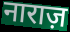
नाराज़